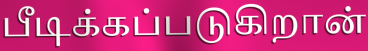
பீடிக்கப்படுகிறான்